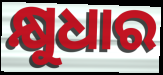
କ୍ଷୁଧାର